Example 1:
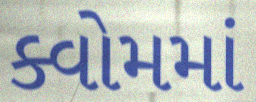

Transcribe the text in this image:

ક્વોમમાં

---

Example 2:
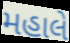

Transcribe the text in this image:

મહાલે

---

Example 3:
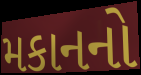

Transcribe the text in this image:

મકાનનો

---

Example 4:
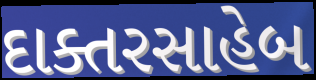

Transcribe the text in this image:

દાક્તરસાહેબ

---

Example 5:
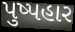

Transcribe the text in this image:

પુષ્પહાર